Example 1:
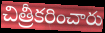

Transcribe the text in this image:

చిత్రీకరించారు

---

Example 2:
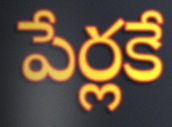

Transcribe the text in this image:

పేర్లకే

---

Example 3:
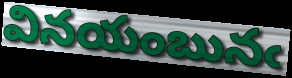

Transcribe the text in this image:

వినయంబునఁ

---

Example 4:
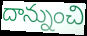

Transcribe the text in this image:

దాన్నుంచి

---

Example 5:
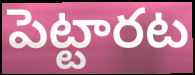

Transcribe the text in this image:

పెట్టారట